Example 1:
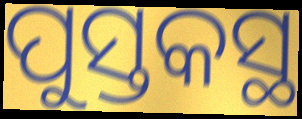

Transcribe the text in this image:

ପୁସ୍ତକସ୍ଥ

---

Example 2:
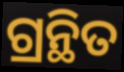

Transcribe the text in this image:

ଗ୍ରନ୍ଥିତ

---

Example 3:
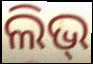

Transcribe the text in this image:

ଲିଭ୍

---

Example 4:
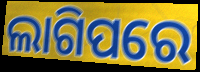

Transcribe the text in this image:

ଲାଗିପରେ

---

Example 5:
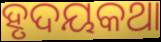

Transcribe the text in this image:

ହୃଦୟକଥା